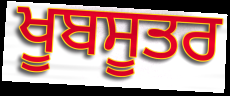
ਖੂਬਸੂਤਰ